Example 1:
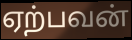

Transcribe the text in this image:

ஏற்பவன்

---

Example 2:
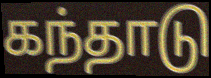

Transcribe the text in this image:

கந்தாடு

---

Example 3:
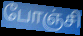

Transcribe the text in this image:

போஞ்சி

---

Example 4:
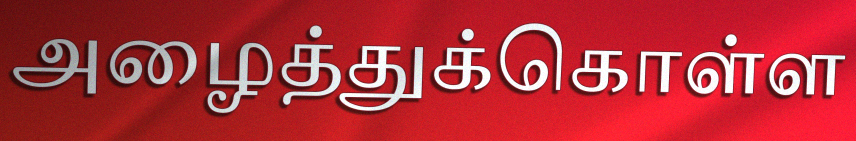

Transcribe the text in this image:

அழைத்துக்கொள்ள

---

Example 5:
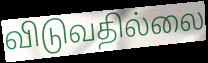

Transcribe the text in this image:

விடுவதில்லை